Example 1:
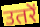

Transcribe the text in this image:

उतरें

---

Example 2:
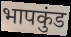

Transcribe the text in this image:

भापकुंड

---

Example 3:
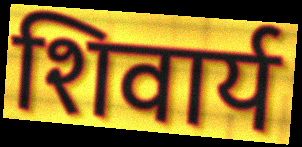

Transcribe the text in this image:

शिवार्य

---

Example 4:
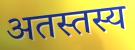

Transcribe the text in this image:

अतस्तस्य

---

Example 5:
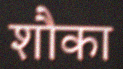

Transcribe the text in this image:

शौका